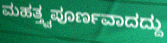
ಮಹತ್ತ್ವಪೂರ್ಣವಾದದ್ದು